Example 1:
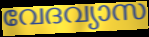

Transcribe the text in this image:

വേദവ്യാസ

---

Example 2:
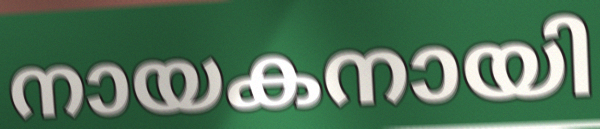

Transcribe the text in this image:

നായകനായി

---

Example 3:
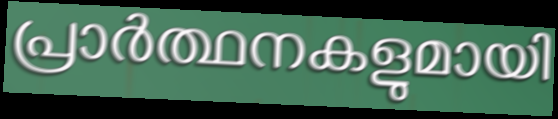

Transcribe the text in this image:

പ്രാർത്ഥനകളുമായി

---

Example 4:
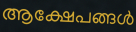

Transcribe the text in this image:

ആക്ഷേപങ്ങൾ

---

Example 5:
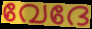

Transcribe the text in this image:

വേദേ